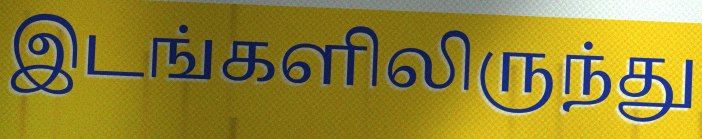
இடங்களிலிருந்து